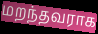
மறந்தவராக